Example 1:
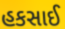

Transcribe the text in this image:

હકસાઈ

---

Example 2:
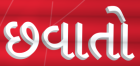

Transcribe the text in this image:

છવાતો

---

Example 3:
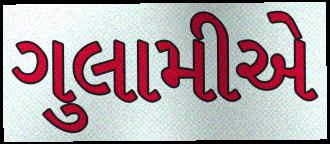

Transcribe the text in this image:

ગુલામીએ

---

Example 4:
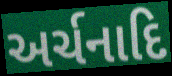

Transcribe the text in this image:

અર્ચનાદિ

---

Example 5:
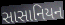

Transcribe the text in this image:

સાસાનિયન